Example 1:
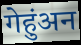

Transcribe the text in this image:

गेहुंअन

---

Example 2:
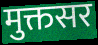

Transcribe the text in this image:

मुक्तसर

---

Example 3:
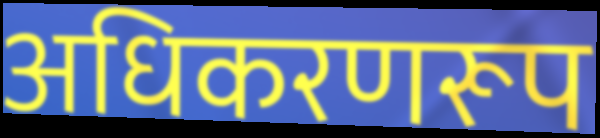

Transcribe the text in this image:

अधिकरणरूप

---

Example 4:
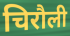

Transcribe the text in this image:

चिरौली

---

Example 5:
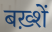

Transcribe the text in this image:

बख़्शें